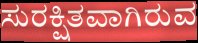
ಸುರಕ್ಷಿತವಾಗಿರುವ